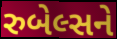
રુબેલ્સને